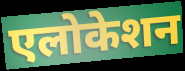
एलोकेशन